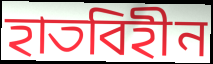
হাতবিহীন